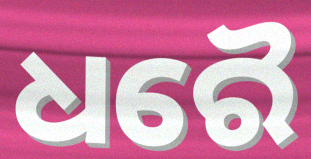
ଧରୈ